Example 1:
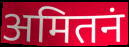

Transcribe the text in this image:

अमितनं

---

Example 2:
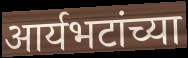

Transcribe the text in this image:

आर्यभटांच्या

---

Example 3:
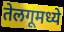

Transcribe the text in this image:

तेलगूमध्ये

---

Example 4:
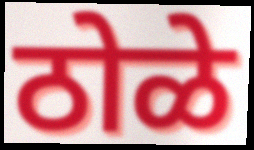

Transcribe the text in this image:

ठोळे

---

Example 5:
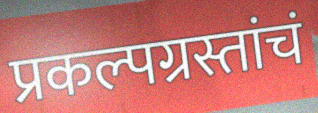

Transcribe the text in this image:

प्रकल्पग्रस्तांचं